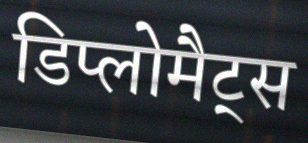
डिप्लोमैट्स